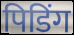
पिडिंग